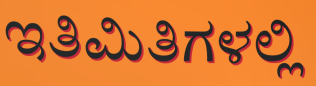
ಇತಿಮಿತಿಗಳಲ್ಲಿ